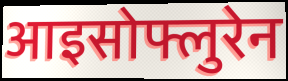
आइसोफ्लुरेन